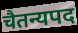
चैतन्यपद